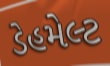
ડેહમેલ્ટ